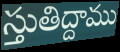
స్తుతిద్దాము